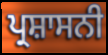
ਪ੍ਰਸ਼ਾਸਨੀ